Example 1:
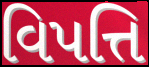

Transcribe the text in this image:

વિપત્તિ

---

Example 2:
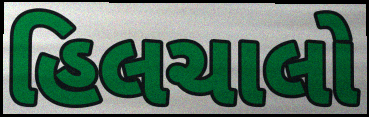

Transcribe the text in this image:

હિલચાલો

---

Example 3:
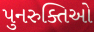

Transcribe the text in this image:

પુનરુક્તિઓ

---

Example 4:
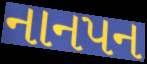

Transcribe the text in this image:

નાનપન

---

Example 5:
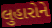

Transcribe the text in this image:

લુહારોને